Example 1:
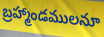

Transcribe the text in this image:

బ్రహ్మాండములనూ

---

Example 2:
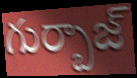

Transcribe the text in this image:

గుర్బాజ్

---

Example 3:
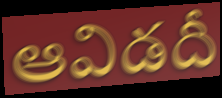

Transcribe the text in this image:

ఆవిడదీ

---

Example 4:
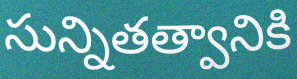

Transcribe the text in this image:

సున్నితత్వానికి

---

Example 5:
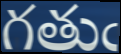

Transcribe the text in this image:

గతుఁ